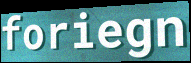
foriegn